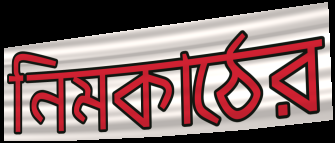
নিমকাঠের